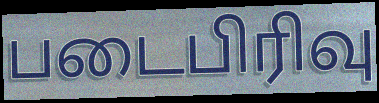
படைபிரிவு